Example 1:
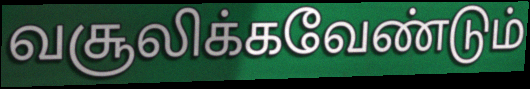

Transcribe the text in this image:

வசூலிக்கவேண்டும்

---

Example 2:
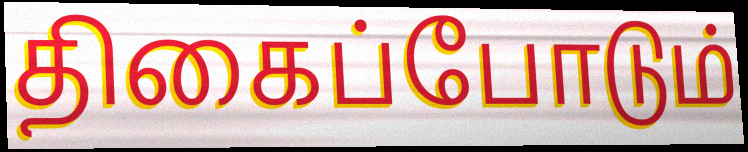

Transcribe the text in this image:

திகைப்போடும்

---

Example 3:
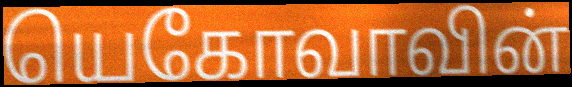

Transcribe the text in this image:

யெகோவாவின்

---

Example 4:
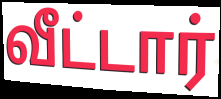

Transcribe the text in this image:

வீட்டார்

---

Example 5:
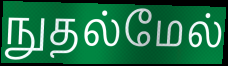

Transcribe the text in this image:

நுதல்மேல்